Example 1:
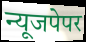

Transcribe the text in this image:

न्यूजपेपर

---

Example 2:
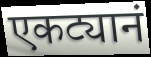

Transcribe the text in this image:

एकट्यानं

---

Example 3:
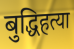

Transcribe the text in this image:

बुद्धिहत्या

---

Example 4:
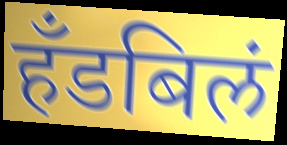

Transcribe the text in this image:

हँडबिलं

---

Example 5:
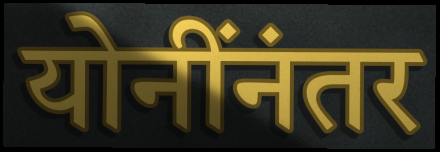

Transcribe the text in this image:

योनींनंतर